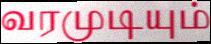
வரமுடியும்